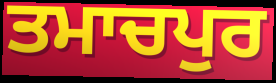
ਤਮਾਚਪੁਰ